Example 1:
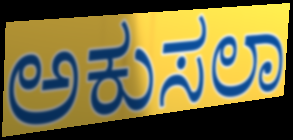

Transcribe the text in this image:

ಅಕುಸಲಾ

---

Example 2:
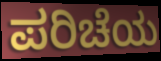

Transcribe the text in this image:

ಪರಿಚೆಯ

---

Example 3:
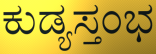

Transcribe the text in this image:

ಕುಡ್ಯಸ್ತಂಭ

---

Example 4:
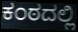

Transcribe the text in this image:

ಕಂಠದಲ್ಲಿ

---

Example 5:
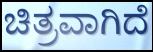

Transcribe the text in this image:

ಚಿತ್ರವಾಗಿದೆ